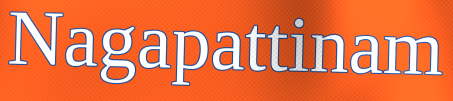
Nagapattinam